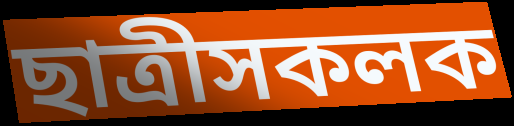
ছাত্ৰীসকলক